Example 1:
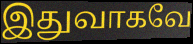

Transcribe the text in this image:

இதுவாகவே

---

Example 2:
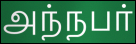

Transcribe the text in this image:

அந்நபர்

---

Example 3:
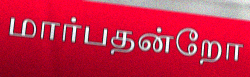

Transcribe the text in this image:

மார்பதன்றோ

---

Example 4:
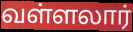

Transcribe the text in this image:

வள்ளலார்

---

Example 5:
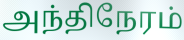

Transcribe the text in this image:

அந்திநேரம்